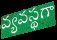
వ్యవస్థగా